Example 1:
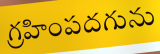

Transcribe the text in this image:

గ్రహింపదగును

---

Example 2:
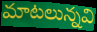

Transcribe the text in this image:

మాటలున్నవి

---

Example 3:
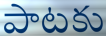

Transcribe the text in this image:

పాటకు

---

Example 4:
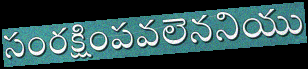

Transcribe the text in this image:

సంరక్షింపవలెననియు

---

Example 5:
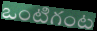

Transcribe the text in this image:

ఒంటిగంట